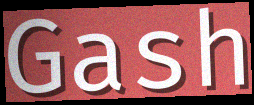
Gash